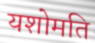
यशोमति